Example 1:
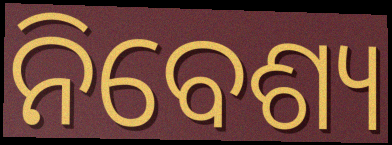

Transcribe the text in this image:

ନିବେଶ୍ୟ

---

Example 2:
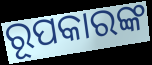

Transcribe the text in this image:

ରୂପକାରଙ୍କ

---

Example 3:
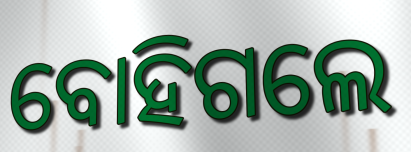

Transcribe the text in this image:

ବୋହିଗଲେ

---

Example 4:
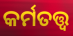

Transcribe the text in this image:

କର୍ମତତ୍ତ୍ୱ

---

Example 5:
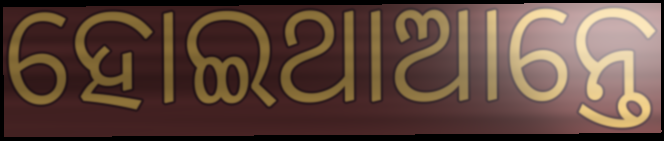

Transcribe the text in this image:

ହୋଇଥାଆନ୍ତେ